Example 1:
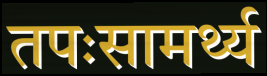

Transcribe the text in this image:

तपःसामर्थ्य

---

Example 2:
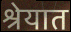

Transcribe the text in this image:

श्रेयात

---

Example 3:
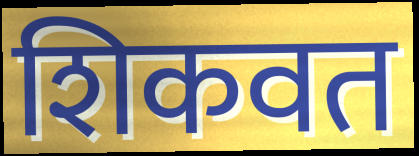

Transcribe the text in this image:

शिकवत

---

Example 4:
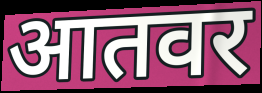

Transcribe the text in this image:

आतवर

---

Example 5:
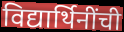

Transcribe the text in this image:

विद्यार्थिनींची